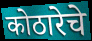
कोठारेचे